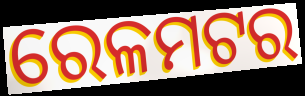
ରେଳମଟର